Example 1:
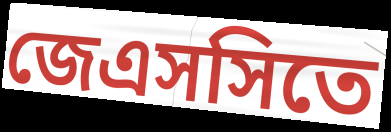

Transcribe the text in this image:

জেএসসিতে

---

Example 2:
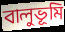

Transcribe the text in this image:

বালুভূমি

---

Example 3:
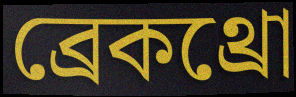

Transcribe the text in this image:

ব্রেকথ্রো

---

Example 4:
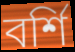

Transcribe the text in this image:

বর্শি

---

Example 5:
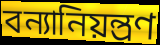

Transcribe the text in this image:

বন্যানিয়ন্ত্রণ